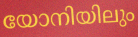
യോനിയിലും